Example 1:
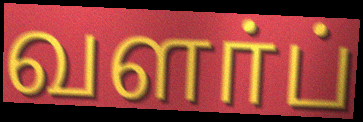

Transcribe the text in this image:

வளர்ப்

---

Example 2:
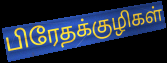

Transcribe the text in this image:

பிரேதக்குழிகள்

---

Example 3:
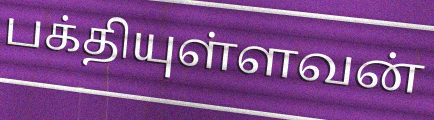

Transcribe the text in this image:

பக்தியுள்ளவன்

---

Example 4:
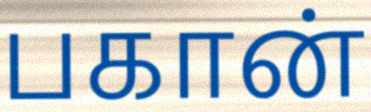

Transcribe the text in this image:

பகான்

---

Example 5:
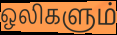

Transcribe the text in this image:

ஒலிகளும்